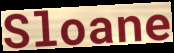
Sloane